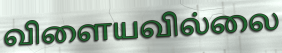
விளையவில்லை